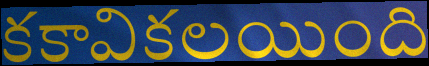
కకావికలయింది